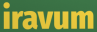
iravum